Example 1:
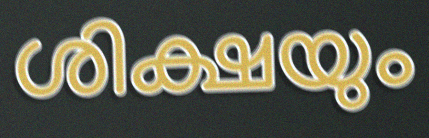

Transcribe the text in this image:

ശിക്ഷയും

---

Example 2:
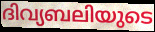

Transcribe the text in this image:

ദിവ്യബലിയുടെ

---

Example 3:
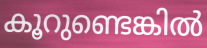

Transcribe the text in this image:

കൂറുണ്ടെങ്കിൽ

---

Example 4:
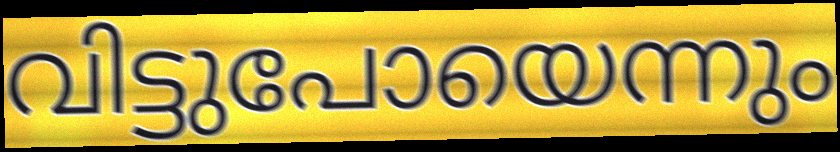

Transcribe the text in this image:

വിട്ടുപോയെന്നും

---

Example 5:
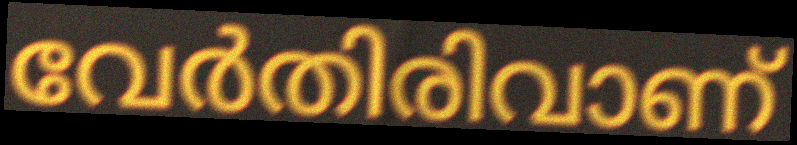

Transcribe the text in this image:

വേർതിരിവാണ്